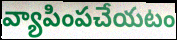
వ్యాపింపచేయటం